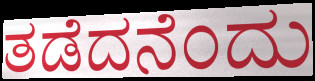
ತಡೆದನೆಂದು